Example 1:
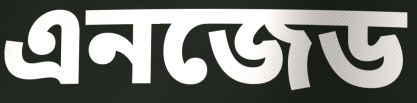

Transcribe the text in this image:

এনজেড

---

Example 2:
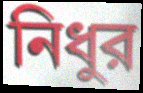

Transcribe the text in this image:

নিধুর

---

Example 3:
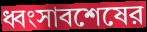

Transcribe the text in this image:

ধ্বংসাবশেষের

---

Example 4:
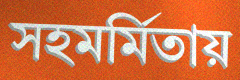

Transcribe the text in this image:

সহমর্মিতায়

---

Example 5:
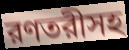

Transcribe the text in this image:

রণতরীসহ